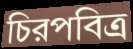
চিরপবিত্র